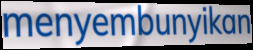
menyembunyikan